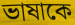
ভাষাকে